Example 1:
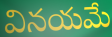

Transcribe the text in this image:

వినయమే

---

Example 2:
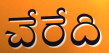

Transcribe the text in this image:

చేరేది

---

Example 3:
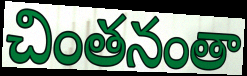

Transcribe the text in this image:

చింతనంతా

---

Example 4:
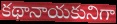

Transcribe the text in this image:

కథానాయకునిగా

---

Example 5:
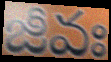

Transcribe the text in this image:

జీవః